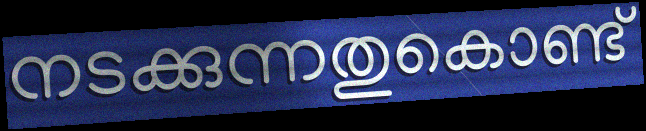
നടക്കുന്നതുകൊണ്ട്